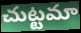
చుట్టమా